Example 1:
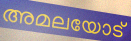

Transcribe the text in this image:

അമലയോട്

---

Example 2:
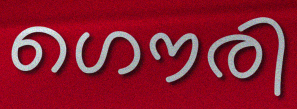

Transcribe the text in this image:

ഗൌരി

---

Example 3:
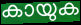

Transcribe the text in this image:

കായുക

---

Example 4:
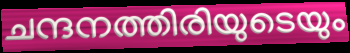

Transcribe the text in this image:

ചന്ദനത്തിരിയുടെയും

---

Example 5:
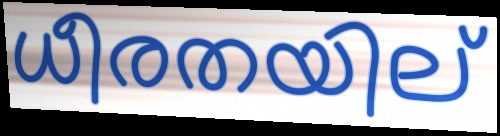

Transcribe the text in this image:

ധീരതയില്